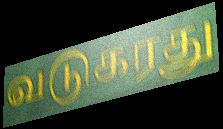
வடுகரது